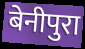
बेनीपुरा